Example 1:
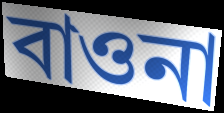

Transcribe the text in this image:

বাওনা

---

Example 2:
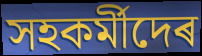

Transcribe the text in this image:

সহকৰ্মীদেৰ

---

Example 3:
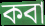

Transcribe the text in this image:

কবা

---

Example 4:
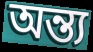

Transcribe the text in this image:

অন্ত্য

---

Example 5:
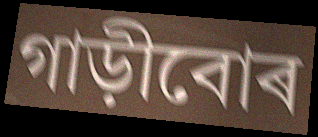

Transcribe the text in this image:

গাড়ীবোৰ